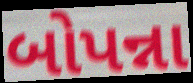
બોપન્ના